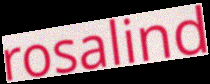
rosalind